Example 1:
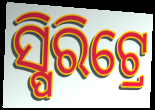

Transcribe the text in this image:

ସ୍ପିରିଟ୍ରେ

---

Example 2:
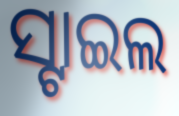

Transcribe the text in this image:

ସ୍ଟାଇଲ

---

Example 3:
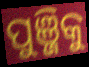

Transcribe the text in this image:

ପୁଞ୍ଜିକୁ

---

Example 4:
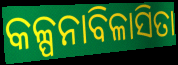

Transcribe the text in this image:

କଳ୍ପନାବିଳାସିତା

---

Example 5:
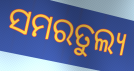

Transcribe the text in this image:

ସମରତୁଲ୍ୟ